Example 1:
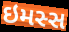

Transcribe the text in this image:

ઇમસ્સ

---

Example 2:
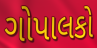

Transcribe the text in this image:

ગોપાલકો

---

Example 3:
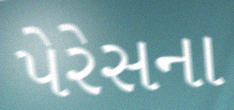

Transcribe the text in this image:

પેરેસના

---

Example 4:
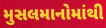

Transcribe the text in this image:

મુસલમાનોમાંથી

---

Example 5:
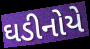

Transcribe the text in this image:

ઘડીનોયે